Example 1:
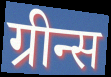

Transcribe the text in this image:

ग्रीन्स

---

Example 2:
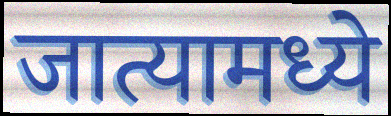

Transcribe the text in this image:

जात्यामध्ये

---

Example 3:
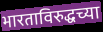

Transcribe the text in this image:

भारताविरुद्धच्या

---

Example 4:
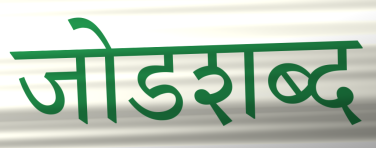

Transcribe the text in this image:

जोडशब्द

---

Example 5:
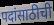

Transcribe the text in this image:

पदांसाठीची